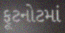
ફૂટનોટમાં